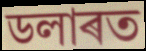
ডলাৰত